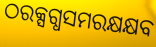
ଠରକ୍ସଗ୍ଧସମରକ୍ଷକ୍ଷବ